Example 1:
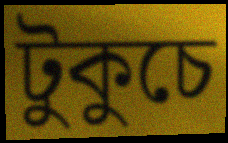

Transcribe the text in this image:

টুকুচে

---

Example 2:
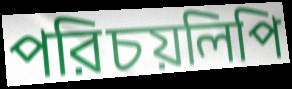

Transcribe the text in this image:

পরিচয়লিপি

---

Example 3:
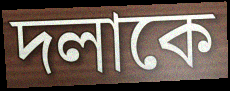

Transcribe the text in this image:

দলাকে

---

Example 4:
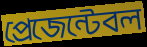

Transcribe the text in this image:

প্রেজেন্টেবল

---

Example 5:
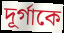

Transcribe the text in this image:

দূর্গাকে